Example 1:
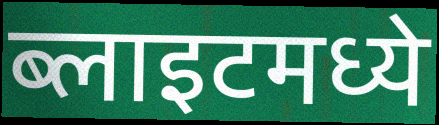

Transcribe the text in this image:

ब्लाइटमध्ये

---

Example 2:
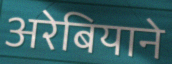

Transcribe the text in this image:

अरेबियाने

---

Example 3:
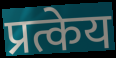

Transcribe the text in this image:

प्रत्केय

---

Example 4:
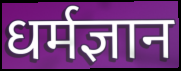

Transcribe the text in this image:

धर्मज्ञान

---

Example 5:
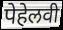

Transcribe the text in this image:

पेहेलवी